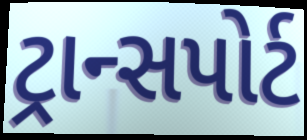
ટ્રાન્સપોર્ટ